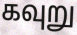
கவுறு